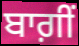
ਬਾਗ਼ੀਂ